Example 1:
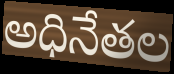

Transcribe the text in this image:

అధినేతల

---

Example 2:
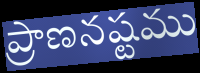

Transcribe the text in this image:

ప్రాణనష్టము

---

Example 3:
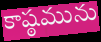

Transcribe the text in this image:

కాష్ఠమును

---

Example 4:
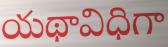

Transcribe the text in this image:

యథావిధిగా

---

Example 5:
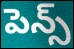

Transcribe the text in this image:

పెన్స్